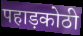
पहाड़कोठी